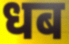
धब